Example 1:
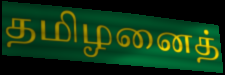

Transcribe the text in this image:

தமிழனைத்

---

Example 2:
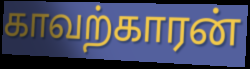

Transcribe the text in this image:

காவற்காரன்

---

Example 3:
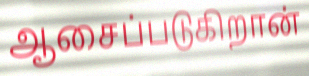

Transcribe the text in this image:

ஆசைப்படுகிறான்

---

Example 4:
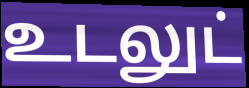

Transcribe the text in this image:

உடலுட்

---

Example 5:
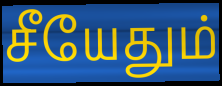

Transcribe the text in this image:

சீயேதும்